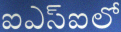
ఐఎస్ఐలో